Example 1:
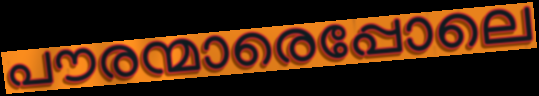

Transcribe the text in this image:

പൗരന്മാരെപ്പോലെ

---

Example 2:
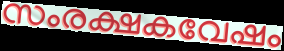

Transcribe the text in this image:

സംരക്ഷകവേഷം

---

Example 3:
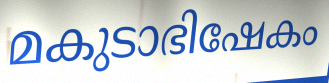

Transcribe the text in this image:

മകുടാഭിഷേകം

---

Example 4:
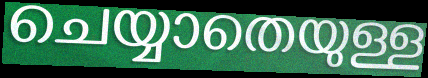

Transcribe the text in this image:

ചെയ്യാതെയുള്ള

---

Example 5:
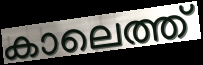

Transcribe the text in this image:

കാലെത്ത്